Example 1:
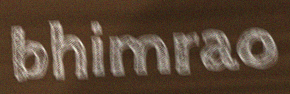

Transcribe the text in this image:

bhimrao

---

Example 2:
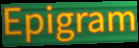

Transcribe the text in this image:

Epigram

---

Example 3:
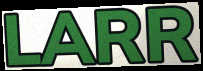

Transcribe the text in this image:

LARR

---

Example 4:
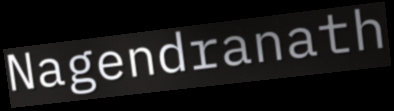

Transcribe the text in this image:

Nagendranath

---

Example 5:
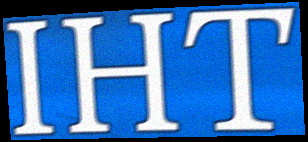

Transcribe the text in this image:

IHT